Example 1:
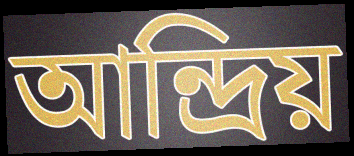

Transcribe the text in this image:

আন্দ্রিয়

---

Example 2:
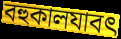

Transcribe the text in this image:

বহুকালযাবৎ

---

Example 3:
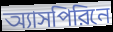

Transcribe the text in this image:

অ্যাসপিরিনে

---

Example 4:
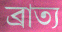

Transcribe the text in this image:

ব্রাত্য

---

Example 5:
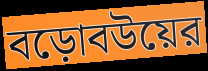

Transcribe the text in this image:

বড়োবউয়ের